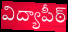
విద్యాపీఠ్